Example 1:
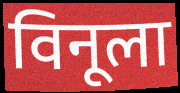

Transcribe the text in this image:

विनूला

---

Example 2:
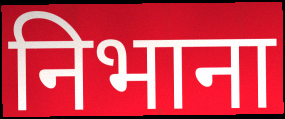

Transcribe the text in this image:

निभाना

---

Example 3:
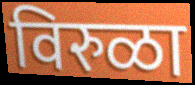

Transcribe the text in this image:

विरुळा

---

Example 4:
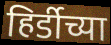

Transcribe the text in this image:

हिर्डीच्या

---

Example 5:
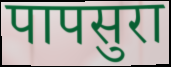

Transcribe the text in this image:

पापसुरा